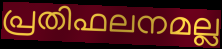
പ്രതിഫലനമല്ല